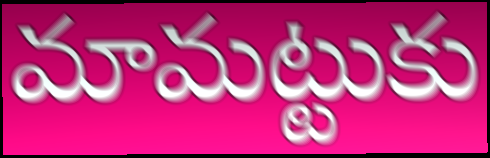
మామట్టుకు